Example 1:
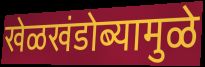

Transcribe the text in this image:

खेळखंडोब्यामुळे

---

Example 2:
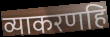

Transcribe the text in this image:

व्याकरणहि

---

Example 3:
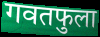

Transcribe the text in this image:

गवतफुला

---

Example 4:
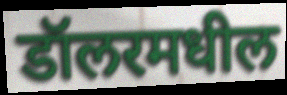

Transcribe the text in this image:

डॉलरमधील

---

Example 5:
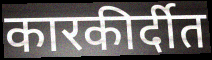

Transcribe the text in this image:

कारकीर्दीत